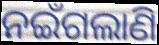
ନଇଁଗଲାଣି